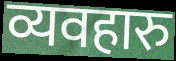
व्यवहारु